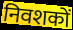
निवशकों